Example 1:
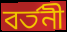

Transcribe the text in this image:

বৰ্তনী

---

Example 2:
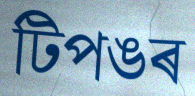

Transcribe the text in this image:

টিপঙৰ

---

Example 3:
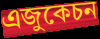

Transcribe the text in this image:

এজুকেচন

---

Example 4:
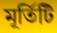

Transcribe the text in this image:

মূৰ্তিটি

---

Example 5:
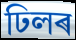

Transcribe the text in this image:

ঢিলৰ